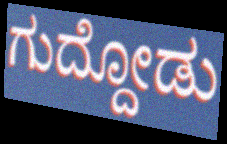
ಗುದ್ದೋಡು